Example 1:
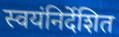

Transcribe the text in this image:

स्वयंनिर्देशित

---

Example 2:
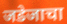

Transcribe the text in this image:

जडेजाचा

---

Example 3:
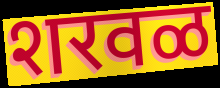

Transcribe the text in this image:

शरवळ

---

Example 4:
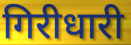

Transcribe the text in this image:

गिरीधारी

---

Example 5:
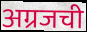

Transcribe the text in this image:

अग्रजची